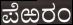
ಪೆಱರಂ